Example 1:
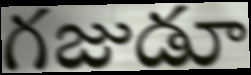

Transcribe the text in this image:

గజుడూ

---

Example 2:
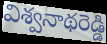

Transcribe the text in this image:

విశ్వనాథరెడ్డి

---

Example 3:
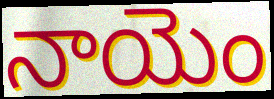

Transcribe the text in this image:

నాయెం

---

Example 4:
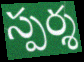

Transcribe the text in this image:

స్పర్శ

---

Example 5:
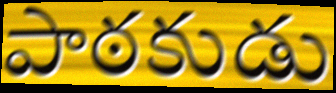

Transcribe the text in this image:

పాఠకుడు